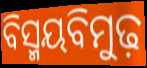
ବିସ୍ମୟବିମୁଢ଼